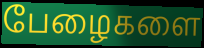
பேழைகளை